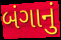
બંગાનું